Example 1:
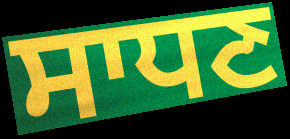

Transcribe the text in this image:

ਸਾਧਣ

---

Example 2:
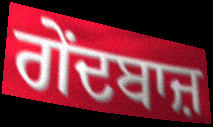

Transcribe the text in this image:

ਗੇਂਦਬਾਜ਼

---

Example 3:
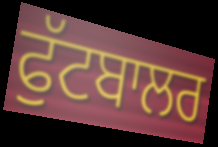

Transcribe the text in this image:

ਫੁੱਟਬਾਲਰ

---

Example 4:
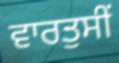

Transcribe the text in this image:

ਵਾਰਤੁਸੀਂ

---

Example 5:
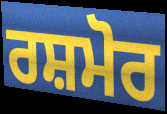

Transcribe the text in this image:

ਰਸ਼ਮੋਰ